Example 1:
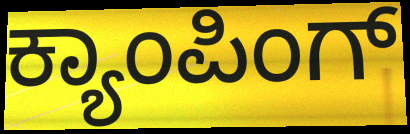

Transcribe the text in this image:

ಕ್ಯಾಂಪಿಂಗ್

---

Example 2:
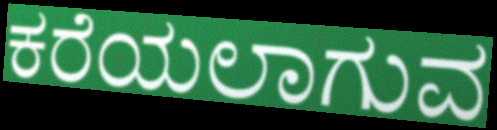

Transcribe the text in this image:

ಕರೆಯಲಾಗುವ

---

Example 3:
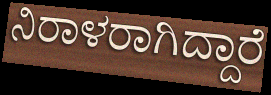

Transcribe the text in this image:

ನಿರಾಳರಾಗಿದ್ದಾರೆ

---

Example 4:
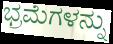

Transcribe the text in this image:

ಭ್ರಮೆಗಳನ್ನು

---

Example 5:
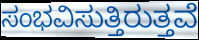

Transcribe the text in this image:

ಸಂಭವಿಸುತ್ತಿರುತ್ತವೆ